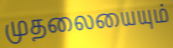
முதலையையும்